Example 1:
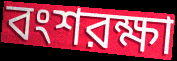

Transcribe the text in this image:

বংশরক্ষা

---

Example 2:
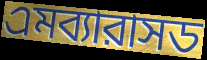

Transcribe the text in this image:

এমব্যারাসড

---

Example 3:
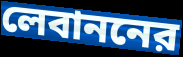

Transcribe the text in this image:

লেবাননের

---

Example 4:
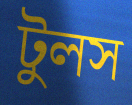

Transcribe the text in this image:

টুলস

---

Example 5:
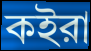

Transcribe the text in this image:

কইরা